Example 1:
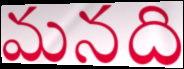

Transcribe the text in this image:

మనది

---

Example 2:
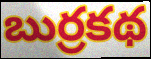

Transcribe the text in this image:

బుర్రకథ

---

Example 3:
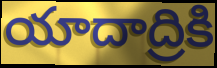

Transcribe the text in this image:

యాదాద్రికి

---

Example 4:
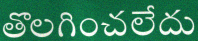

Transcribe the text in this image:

తొలగించలేదు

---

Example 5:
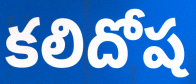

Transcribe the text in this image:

కలిదోష